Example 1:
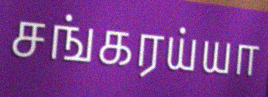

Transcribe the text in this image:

சங்கரய்யா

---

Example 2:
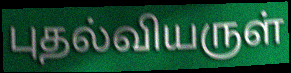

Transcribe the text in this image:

புதல்வியருள்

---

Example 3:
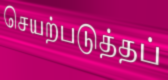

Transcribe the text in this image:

செயற்படுத்தப்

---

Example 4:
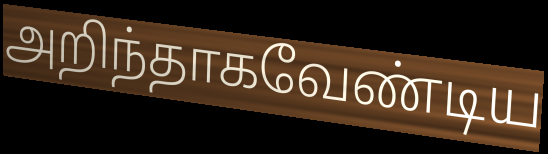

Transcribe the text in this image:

அறிந்தாகவேண்டிய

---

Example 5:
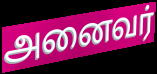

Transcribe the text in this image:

அனைவர்